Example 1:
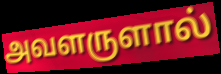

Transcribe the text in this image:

அவளருளால்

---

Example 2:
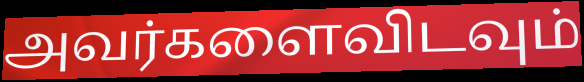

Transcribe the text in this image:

அவர்களைவிடவும்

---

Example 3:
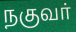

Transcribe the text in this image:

நகுவர்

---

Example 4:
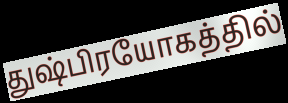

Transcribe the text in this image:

துஷ்பிரயோகத்தில்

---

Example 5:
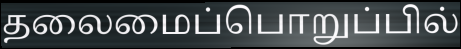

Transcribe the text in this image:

தலைமைப்பொறுப்பில்